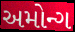
અમોન્ગ